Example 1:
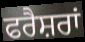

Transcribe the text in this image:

ਫਰੈਸ਼ਰਾਂ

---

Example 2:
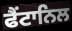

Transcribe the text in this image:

ਫੈਂਟਾਨਿਲ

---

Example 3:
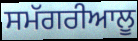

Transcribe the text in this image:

ਸਮੱਗਰੀਆਲੂ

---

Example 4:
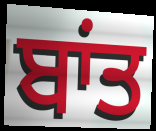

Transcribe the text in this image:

ਬਾਂਤ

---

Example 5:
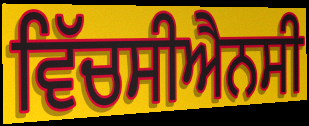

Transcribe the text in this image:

ਵਿੱਚਸੀਐਨਸੀ